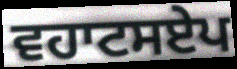
ਵਹਾਟਸਏਪ